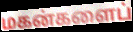
மகன்களைப்